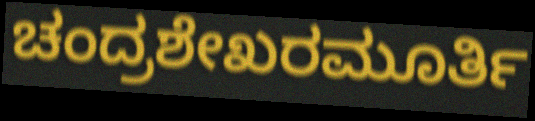
ಚಂದ್ರಶೇಖರಮೂರ್ತಿ